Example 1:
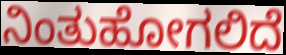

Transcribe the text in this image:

ನಿಂತುಹೋಗಲಿದೆ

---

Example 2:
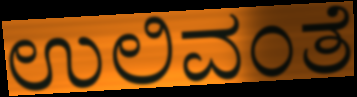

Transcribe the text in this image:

ಉಲಿವಂತೆ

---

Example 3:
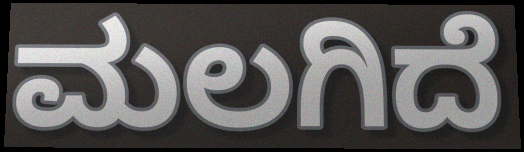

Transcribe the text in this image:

ಮಲಗಿದೆ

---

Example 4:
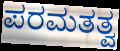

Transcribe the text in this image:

ಪರಮತತ್ವ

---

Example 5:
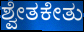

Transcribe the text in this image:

ಶ್ವೇತಕೇತು